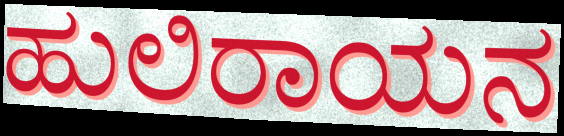
ಹುಲಿರಾಯನ